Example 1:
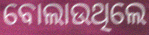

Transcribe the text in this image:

ବୋଲାଉଥିଲେ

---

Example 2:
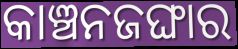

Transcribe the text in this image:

କାଞ୍ଚନଜଙ୍ଘାର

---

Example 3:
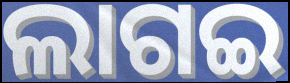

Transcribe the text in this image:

ଲାଗଇ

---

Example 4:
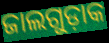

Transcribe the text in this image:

ଜାଲଗୁଡ଼ାକ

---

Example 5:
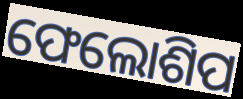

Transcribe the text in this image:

ଫେଲୋଶିପ